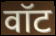
वॉट